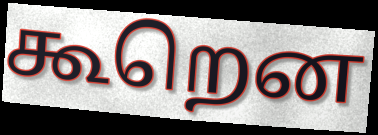
கூறென